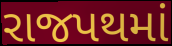
રાજપથમાં